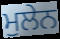
ਮੁਲੇਨ